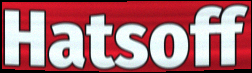
Hatsoff